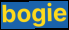
bogie